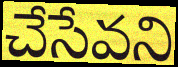
చేసేవని